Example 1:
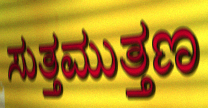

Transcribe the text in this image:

ಸುತ್ತಮುತ್ತಣ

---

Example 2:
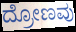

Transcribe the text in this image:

ದ್ರೋಣವು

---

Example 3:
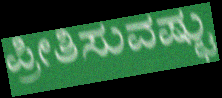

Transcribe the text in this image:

ಪ್ರೀತಿಸುವಷ್ಟು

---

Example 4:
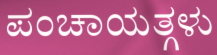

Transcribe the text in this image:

ಪಂಚಾಯತ್ಗಳು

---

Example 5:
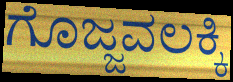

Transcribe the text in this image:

ಗೊಜ್ಜವಲಕ್ಕಿ